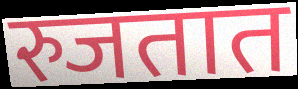
रुजतात